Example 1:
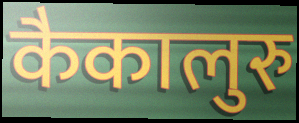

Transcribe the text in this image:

कैकालुरु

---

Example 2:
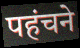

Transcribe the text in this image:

पहंचने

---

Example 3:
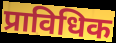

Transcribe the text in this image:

प्राविधिक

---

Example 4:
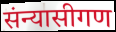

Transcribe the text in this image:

संन्यासीगण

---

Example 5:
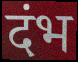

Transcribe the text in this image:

दंभ